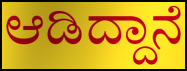
ಆಡಿದ್ದಾನೆ